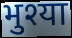
भुश्या